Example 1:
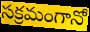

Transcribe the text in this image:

సక్రమంగానో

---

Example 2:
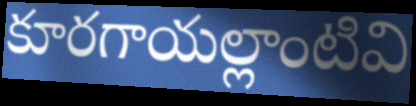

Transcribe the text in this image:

కూరగాయల్లాంటివి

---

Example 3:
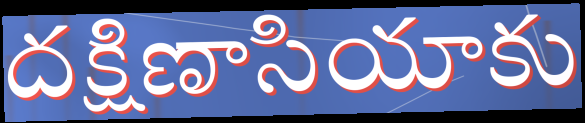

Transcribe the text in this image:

దక్షిణాసియాకు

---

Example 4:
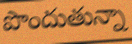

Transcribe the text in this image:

పొందుతున్నా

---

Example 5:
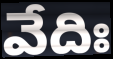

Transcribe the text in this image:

వేదిః